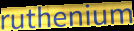
ruthenium